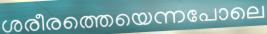
ശരീരത്തെയെന്നപോലെ